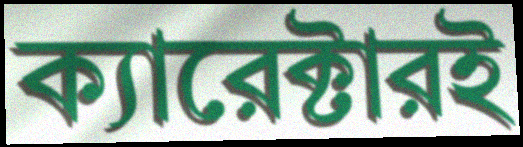
ক্যারেক্টারই